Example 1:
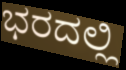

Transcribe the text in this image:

ಭರದಲ್ಲಿ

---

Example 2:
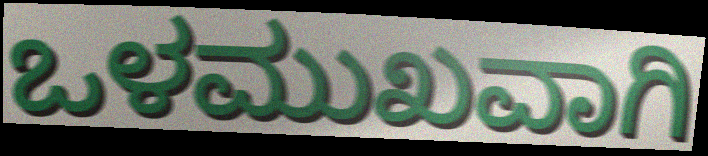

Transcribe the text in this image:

ಒಳಮುಖವಾಗಿ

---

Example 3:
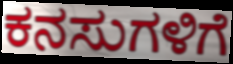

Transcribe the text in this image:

ಕನಸುಗಳಿಗೆ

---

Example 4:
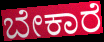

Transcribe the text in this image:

ಬೇಕಾರೆ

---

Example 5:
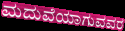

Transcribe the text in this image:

ಮದುವೆಯಾಗುವವರ